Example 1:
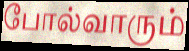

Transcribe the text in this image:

போல்வாரும்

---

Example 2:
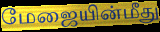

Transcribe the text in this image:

மேஜையின்மீது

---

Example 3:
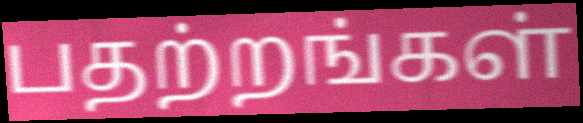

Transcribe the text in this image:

பதற்றங்கள்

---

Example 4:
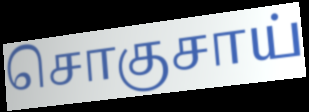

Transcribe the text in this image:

சொகுசாய்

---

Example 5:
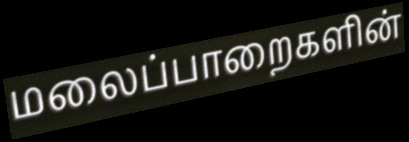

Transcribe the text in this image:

மலைப்பாறைகளின்